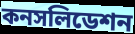
কনসলিডেশন